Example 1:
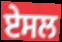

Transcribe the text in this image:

ਏਸਲ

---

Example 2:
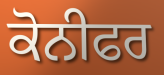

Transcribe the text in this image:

ਕੋਨੀਫਰ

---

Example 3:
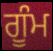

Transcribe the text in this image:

ਗੂੰਮ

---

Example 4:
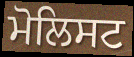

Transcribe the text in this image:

ਮੋਲਿਸਟ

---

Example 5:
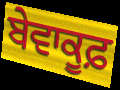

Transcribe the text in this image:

ਬੇਵਾਕੂਫ਼